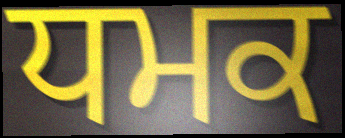
ਧਮਕ